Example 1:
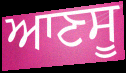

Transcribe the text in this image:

ਆਣਸੂ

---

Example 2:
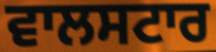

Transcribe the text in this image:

ਵਾਲਸਟਾਰ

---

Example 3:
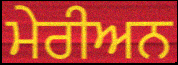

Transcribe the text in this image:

ਮੇਰੀਅਨ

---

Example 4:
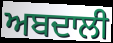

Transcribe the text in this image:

ਅਬਦਾਲੀ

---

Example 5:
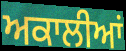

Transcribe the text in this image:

ਅਕਾਲੀਆਂ